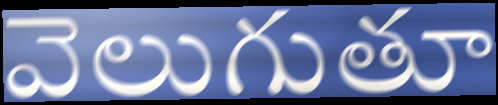
వెలుగుతూ